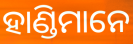
ହାଣ୍ଡିମାନେ